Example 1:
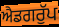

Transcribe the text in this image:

ਐਡਗਰੁੱਪ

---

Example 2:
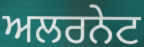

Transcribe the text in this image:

ਅਲਰਨੇਟ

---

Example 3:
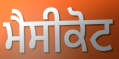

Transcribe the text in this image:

ਮੈਸੀਕੋਟ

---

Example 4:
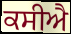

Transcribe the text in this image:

ਕਸੀਐ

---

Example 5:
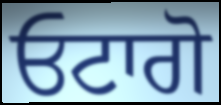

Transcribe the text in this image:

ਓਟਾਗੋ